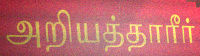
அறியத்தாரீர்